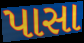
પાસા